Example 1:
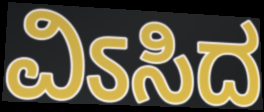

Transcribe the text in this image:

ವಿಽಸಿದ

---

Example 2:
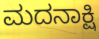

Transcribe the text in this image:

ಮದನಾಕ್ಷಿ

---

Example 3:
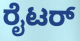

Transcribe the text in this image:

ರೈಟರ್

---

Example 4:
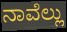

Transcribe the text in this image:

ನಾವೆಲ್ಲು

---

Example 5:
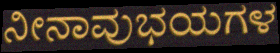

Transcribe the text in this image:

ನೀನಾವುಭಯಗಳ